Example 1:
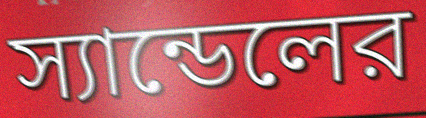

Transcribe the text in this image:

স্যান্ডেলের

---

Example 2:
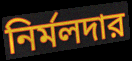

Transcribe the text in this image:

নির্মলদার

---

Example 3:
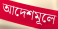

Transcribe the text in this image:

আদেশমূলে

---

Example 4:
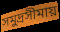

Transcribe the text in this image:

সমুদ্রসীমায়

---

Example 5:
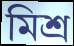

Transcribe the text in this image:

মিশ্র